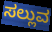
ಸಲ್ಲುವ